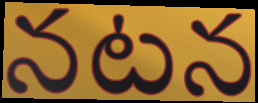
నటన